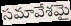
సమావేశమై